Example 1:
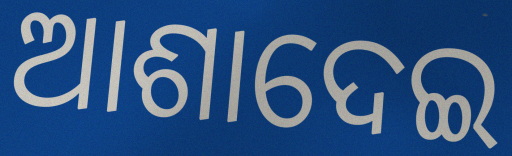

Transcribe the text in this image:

ଆଶାଦେଇ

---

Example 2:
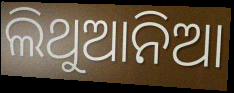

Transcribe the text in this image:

ଲିଥୁଆନିଆ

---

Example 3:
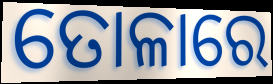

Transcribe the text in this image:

ତୋଳାରେ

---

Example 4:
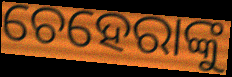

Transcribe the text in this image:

ଚେହେରାଙ୍କୁ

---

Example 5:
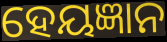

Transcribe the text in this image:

ହେୟଜ୍ଞାନ